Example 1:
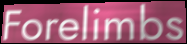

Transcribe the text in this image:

Forelimbs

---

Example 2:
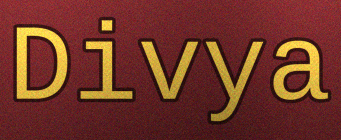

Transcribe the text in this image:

Divya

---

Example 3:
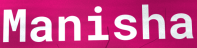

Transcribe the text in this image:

Manisha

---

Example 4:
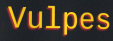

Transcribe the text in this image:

Vulpes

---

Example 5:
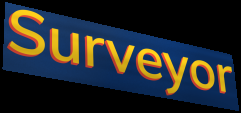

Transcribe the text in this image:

Surveyor